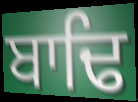
ਬਾਢਿ